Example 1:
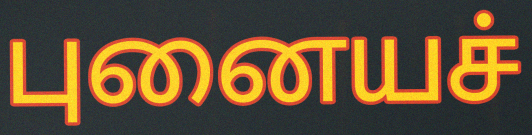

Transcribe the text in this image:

புனையச்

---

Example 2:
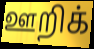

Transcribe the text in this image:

ஊறிக்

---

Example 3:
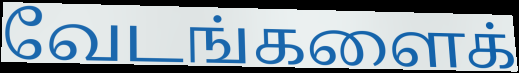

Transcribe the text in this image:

வேடங்களைக்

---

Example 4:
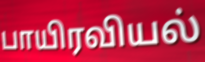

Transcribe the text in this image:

பாயிரவியல்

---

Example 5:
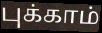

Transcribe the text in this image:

புக்காம்